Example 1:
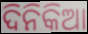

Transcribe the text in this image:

ଦିନିକିଆ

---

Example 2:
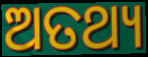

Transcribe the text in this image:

ଅତଥ୍ୟ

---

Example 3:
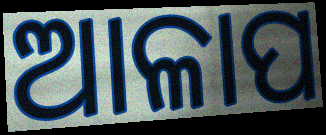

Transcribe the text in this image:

ଆଳାପ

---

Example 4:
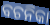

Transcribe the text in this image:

ବଚନିକା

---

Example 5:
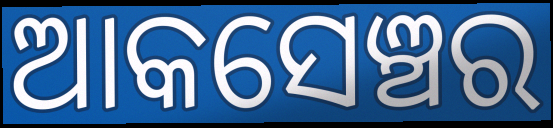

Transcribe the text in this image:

ଆକସେଞ୍ଚର